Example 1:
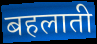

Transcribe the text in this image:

बहलाती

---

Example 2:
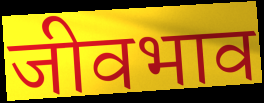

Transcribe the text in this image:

जीवभाव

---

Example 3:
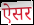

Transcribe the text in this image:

ऐसर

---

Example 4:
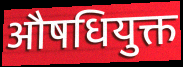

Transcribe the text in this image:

औषधियुक्त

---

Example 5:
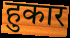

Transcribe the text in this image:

हुकार